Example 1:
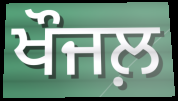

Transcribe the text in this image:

ਖੌਜਲ਼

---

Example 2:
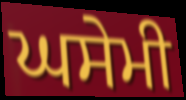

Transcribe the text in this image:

ਘਸੇਮੀ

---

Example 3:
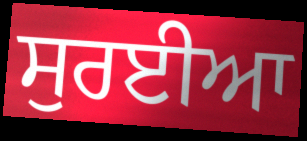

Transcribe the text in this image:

ਸੁਰਈਆ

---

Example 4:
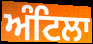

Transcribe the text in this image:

ਅੰਟਿਲਾ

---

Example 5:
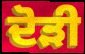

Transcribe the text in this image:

ਦੋੜੀ